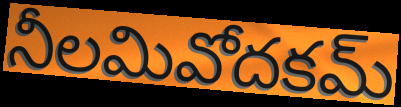
నీలమివోదకమ్